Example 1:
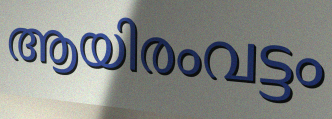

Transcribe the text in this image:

ആയിരംവട്ടം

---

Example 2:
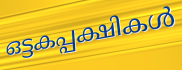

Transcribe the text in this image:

ഒട്ടകപ്പക്ഷികൾ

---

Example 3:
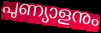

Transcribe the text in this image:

പുണ്യാളനും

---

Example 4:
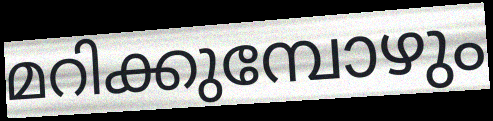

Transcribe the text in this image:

മറിക്കുമ്പോഴും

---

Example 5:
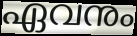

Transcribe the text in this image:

ഏവനും